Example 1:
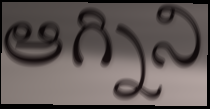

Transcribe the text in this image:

ఆగ్నిని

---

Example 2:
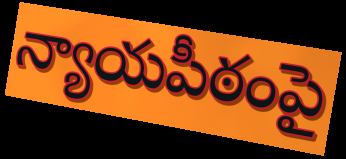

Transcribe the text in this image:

న్యాయపీఠంపై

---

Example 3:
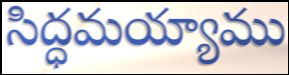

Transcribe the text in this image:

సిద్ధమయ్యాము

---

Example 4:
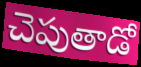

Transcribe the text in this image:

చెపుతాడో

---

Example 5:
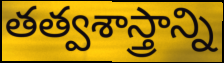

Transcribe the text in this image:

తత్వశాస్త్రాన్ని